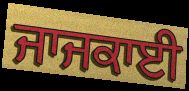
ਜਾਜਕਾਈ